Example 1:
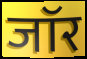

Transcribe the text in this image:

जॉर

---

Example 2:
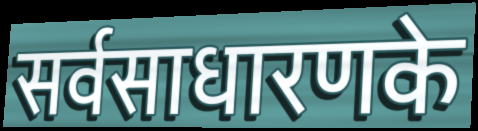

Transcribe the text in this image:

सर्वसाधारणके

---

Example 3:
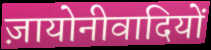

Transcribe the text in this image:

ज़ायोनीवादियों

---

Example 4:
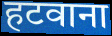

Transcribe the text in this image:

हटवाना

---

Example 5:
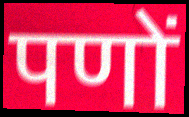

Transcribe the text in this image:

पणों